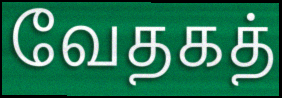
வேதகத்